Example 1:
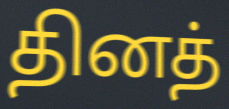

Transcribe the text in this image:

தினத்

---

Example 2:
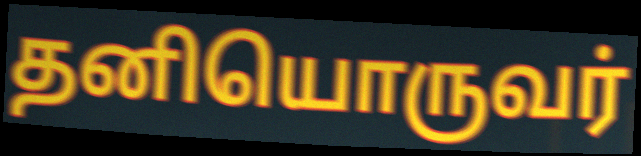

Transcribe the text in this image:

தனியொருவர்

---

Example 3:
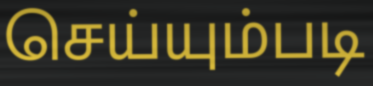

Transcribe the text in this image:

செய்யும்படி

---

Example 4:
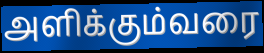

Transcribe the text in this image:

அளிக்கும்வரை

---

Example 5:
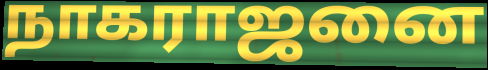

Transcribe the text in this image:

நாகராஜனை